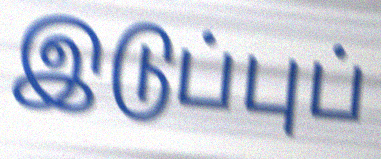
இடுப்புப்